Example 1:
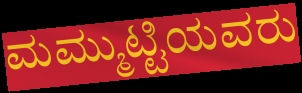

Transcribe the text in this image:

ಮಮ್ಮುಟ್ಟಿಯವರು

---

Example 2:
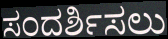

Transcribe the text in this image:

ಸಂದರ್ಶಿಸಲು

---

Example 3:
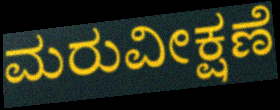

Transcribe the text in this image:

ಮರುವೀಕ್ಷಣೆ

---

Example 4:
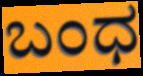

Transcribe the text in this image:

ಬಂಧ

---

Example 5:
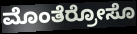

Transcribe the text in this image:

ಮೊಂತೆರ್ರೋಸೊ